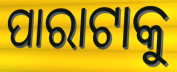
ପାରାଟାକୁ